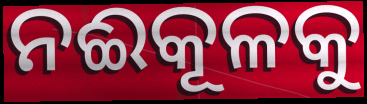
ନଈକୂଳକୁ